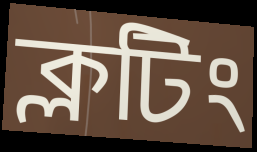
ক্লটিং